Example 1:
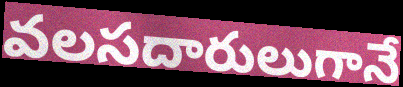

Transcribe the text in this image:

వలసదారులుగానే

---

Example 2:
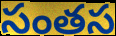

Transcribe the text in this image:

సంతస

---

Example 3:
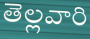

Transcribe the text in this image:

తెల్లవారి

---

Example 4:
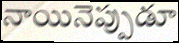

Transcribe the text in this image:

నాయినెప్పుడూ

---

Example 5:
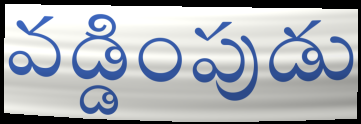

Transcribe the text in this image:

వడ్డింపుడు